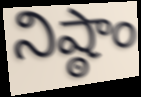
నిష్ఠాం